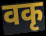
वकृ